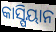
କାସ୍ପିୟାନ